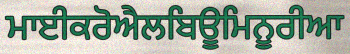
ਮਾਈਕਰੋਐਲਬਿਊਮਿਨੂਰੀਆ